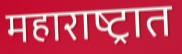
महाराष्ट्रात